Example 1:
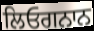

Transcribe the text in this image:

ਲਿਓਗਨਾਨ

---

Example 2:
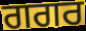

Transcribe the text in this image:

ਗਗਰ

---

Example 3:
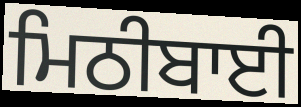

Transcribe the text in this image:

ਮਿਠੀਬਾਈ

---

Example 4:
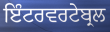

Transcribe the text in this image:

ਇੰਟਰਵਰਟੇਬ੍ਰਲ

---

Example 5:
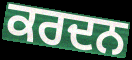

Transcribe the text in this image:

ਕਰਦਨ